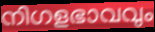
നിഗളഭാവവും